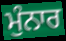
ਮੁੰਨਾਰ